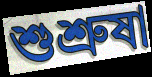
শুশ্ৰুষা